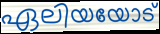
ഏലിയയോട്